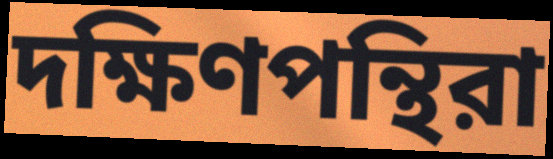
দক্ষিণপন্থিরা